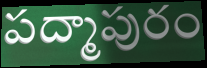
పద్మాపురం